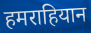
हमराहियान